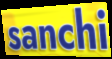
sanchi